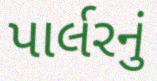
પાર્લરનું